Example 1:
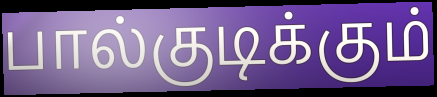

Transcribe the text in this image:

பால்குடிக்கும்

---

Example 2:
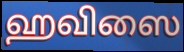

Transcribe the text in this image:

ஹவிஸை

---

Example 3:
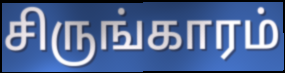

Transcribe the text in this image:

சிருங்காரம்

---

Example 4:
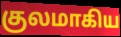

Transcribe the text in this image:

குலமாகிய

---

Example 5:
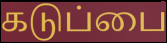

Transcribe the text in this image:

கடுப்பை